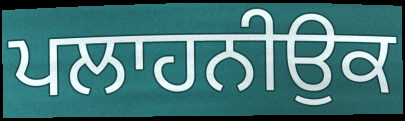
ਪਲਾਹਨੀਉਕ